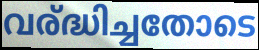
വര്ദ്ധിച്ചതോടെ